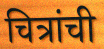
चित्रांची